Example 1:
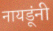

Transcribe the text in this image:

नायडूंनी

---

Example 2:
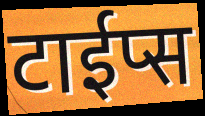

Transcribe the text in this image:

टाईप्स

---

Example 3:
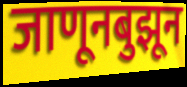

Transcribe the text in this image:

जाणूनबुझून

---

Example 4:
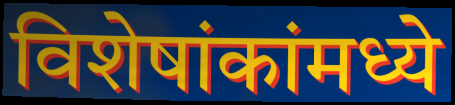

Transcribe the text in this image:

विशेषांकांमध्ये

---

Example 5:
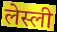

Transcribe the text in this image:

लेस्ली